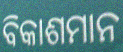
ବିକାଶମାନ